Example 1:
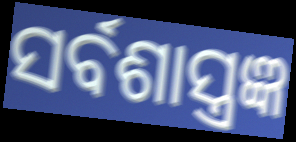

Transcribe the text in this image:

ସର୍ବଶାସ୍ତ୍ରଜ୍ଞ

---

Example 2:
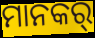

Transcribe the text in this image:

ମାନକର୍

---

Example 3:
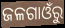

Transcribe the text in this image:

ଜଳଗାଓଁରୁ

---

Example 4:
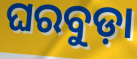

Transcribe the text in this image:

ଘରବୁଡ଼ା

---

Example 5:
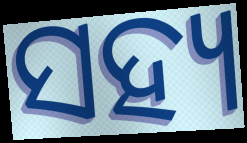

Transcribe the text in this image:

ସହ୍ଯ